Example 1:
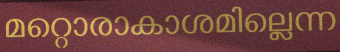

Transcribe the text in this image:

മറ്റൊരാകാശമില്ലെന്ന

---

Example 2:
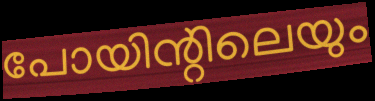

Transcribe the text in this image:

പോയിന്റിലെയും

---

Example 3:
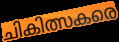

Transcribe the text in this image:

ചികിത്സകരെ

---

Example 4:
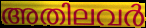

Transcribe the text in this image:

അതിലവർ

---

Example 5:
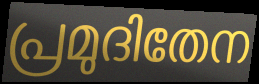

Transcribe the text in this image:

പ്രമുദിതേന